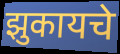
झुकायचे